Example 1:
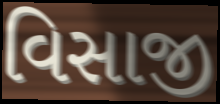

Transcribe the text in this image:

વિસાજી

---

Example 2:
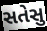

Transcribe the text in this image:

સતેસુ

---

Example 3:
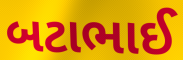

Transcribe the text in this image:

બટાભાઈ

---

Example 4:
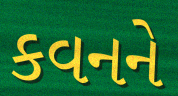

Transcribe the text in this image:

કવનને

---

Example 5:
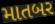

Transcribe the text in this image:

માતબર